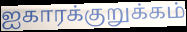
ஐகாரக்குறுக்கம்